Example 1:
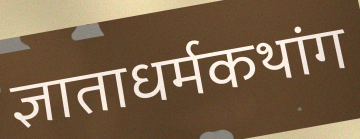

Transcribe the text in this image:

ज्ञाताधर्मकथांग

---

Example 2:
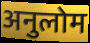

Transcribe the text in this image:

अनुलोम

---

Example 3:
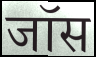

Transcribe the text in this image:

जॉस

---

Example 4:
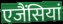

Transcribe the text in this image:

एजैंसियां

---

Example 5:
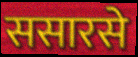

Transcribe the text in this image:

ससारसे